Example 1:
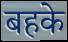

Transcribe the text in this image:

बहके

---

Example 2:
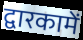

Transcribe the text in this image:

द्वारकामें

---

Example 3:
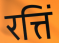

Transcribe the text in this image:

रत्तिं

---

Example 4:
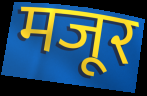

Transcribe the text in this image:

मजूर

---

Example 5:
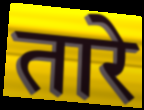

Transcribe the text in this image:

तारे